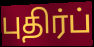
புதிர்ப்